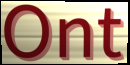
Ont